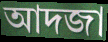
আদজা